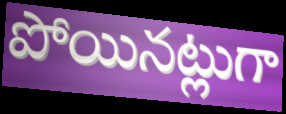
పోయినట్లుగా